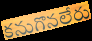
కనుగొనలేరు